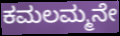
ಕಮಲಮ್ಮನೇ